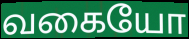
வகையோ